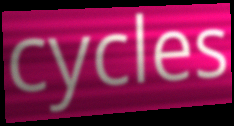
cycles